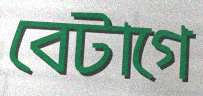
বেটাগে